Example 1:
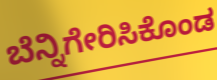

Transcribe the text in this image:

ಬೆನ್ನಿಗೇರಿಸಿಕೊಂಡ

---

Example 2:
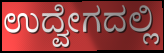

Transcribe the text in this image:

ಉದ್ವೇಗದಲ್ಲಿ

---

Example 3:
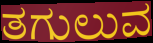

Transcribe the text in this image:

ತಗುಲುವ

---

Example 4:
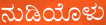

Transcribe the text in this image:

ನುಡಿಯೊಳು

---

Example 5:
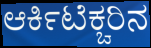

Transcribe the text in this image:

ಆರ್ಕಿಟೆಕ್ಚರಿನ